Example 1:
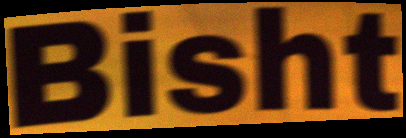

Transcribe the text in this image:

Bisht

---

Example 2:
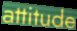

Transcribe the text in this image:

attitude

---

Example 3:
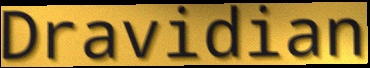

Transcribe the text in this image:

Dravidian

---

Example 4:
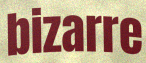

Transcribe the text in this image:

bizarre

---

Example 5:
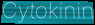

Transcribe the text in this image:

Cytokinin